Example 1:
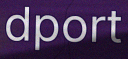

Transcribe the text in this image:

dport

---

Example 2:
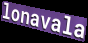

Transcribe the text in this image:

lonavala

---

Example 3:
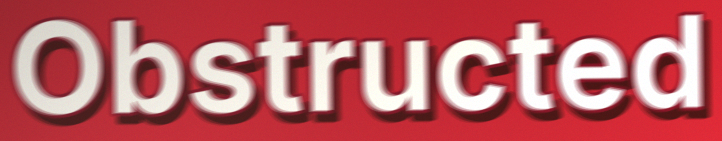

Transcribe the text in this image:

Obstructed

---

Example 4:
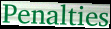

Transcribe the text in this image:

Penalties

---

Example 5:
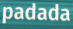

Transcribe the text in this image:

padada